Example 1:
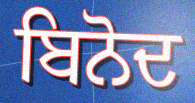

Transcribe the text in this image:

ਬਿਨੋਦ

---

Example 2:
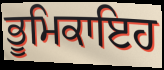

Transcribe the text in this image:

ਭੂਮਿਕਾਇਹ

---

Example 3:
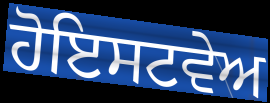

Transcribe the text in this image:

ਹੋਇਸਟਵੇਅ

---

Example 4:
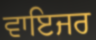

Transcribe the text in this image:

ਵਾਇਜਰ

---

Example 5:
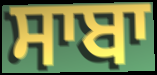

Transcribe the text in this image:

ਸਾਬਾ